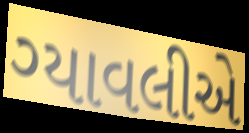
ગ્યાવલીએ